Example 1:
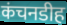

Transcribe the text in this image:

कंचनडीह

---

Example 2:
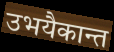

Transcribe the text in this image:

उभयैकान्त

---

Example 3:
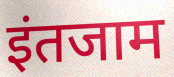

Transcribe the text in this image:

इंतजाम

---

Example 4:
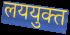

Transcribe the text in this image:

लययुक्त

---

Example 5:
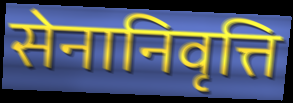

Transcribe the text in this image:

सेनानिवृत्ति